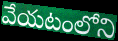
వేయటంలోని